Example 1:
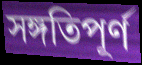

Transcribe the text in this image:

সঙ্গতিপূর্ণ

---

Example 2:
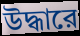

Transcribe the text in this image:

উদ্ধারে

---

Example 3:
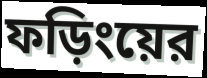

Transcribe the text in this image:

ফড়িংয়ের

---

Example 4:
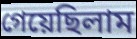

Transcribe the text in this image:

গেয়েছিলাম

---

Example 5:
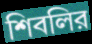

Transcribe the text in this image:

শিবলির